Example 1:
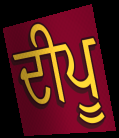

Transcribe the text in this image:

ਦੀਪੂ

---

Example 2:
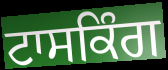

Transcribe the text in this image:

ਟਾਸਕਿੰਗ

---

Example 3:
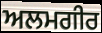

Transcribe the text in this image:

ਅਲਮਗੀਰ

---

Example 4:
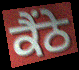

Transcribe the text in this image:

ਕੈਂਠੇ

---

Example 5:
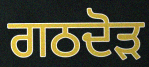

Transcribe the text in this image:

ਗਠਦੋੜ